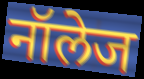
नॉलेज